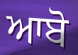
ਆਬੋ